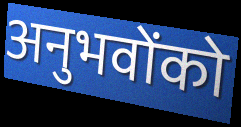
अनुभवोंको